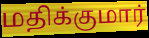
மதிக்குமார்